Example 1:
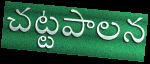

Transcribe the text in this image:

చట్టపాలన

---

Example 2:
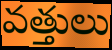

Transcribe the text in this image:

వత్తులు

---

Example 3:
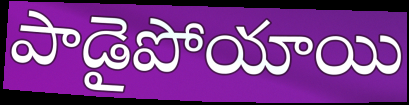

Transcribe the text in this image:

పాడైపోయాయి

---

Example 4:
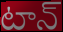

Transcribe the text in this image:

టాన్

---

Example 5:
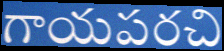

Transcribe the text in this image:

గాయపరచి